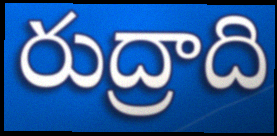
రుద్రాది